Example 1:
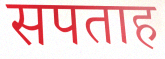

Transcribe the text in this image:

सपताह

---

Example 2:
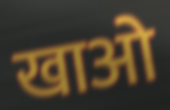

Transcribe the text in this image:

खाओ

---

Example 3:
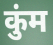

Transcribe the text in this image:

कुंम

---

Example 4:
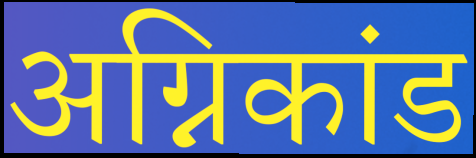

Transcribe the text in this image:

अग्निकांड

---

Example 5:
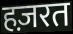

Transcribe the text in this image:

हज़रत